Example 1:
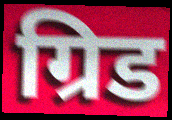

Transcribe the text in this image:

ग्रिड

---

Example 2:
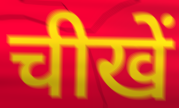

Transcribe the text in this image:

चीखें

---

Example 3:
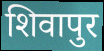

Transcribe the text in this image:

शिवापुर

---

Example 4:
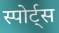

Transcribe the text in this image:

स्पोर्ट्स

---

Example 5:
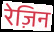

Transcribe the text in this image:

रेज़िन